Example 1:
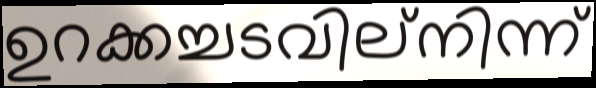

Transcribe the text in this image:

ഉറക്കച്ചടവില്നിന്ന്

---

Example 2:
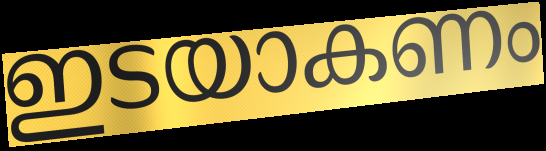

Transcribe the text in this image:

ഇടയാകണം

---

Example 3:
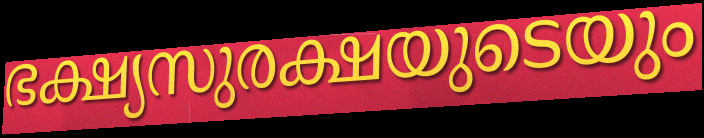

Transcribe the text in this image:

ഭക്ഷ്യസുരക്ഷയുടെയും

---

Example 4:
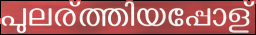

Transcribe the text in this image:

പുലര്ത്തിയപ്പോള്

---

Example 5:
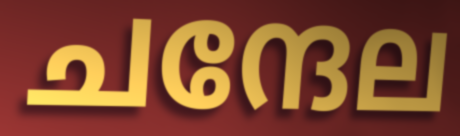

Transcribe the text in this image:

ചന്ദേല